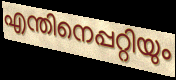
എന്തിനെപ്പറ്റിയും